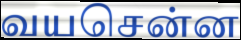
வயசென்ன